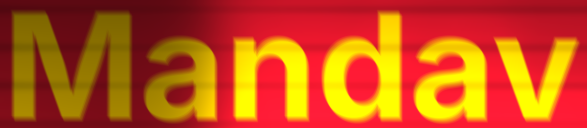
Mandav